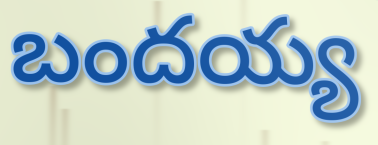
బందయ్య